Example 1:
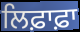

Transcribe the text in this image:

ਲਿਫ਼ਾਫ਼ਾ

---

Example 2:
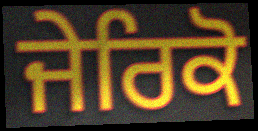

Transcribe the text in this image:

ਜੇਰਿਕੋ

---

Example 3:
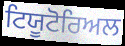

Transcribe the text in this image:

ਟਿਯੂਟੋਰਿਅਲ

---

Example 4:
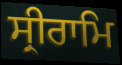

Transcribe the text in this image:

ਸ੍ਰੀਰਾਮਿ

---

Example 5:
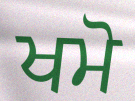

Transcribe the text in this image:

ਖਮੋ